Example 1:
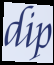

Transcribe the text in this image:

dip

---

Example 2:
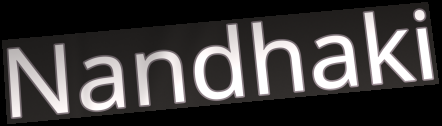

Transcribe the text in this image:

Nandhaki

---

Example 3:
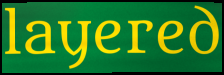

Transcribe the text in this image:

layered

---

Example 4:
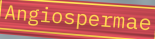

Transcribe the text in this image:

Angiospermae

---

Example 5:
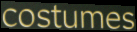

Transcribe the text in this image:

costumes